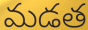
మడత